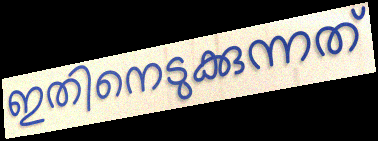
ഇതിനെടുക്കുന്നത്